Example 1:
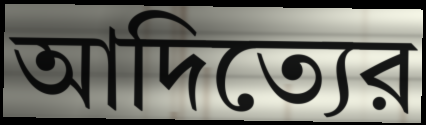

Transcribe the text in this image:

আদিত্যের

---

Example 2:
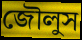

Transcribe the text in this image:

জৌলুস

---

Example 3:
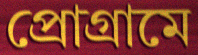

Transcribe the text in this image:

প্রোগ্রামে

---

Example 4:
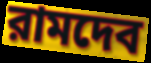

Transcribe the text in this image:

রামদেব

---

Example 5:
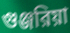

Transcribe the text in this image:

গুঞ্জরিয়া